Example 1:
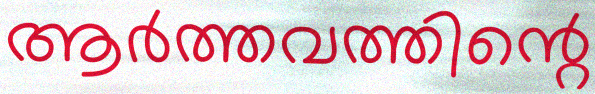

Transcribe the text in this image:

ആർത്തവത്തിന്റെ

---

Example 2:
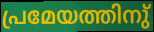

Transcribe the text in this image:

പ്രമേയത്തിനു്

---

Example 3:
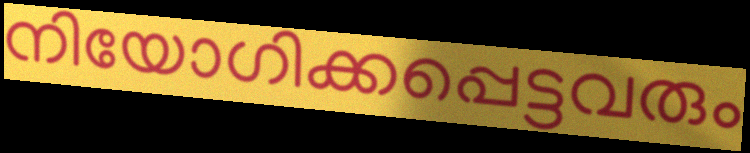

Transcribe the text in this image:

നിയോഗിക്കപ്പെട്ടവരും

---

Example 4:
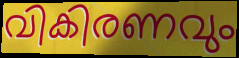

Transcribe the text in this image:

വികിരണവും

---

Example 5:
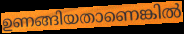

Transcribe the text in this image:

ഉണങ്ങിയതാണെങ്കിൽ